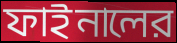
ফাইনালের